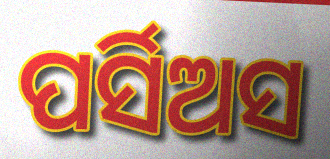
ପର୍ସିଅସ